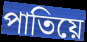
পাতিয়ে